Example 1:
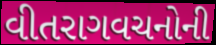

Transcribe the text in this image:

વીતરાગવચનોની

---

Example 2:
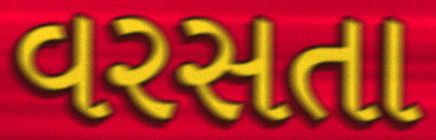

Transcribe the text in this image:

વરસતા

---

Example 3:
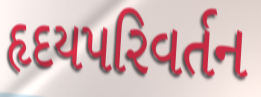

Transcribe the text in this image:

હૃદયપરિવર્તન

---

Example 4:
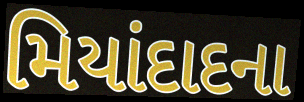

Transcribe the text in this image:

મિયાંદાદના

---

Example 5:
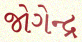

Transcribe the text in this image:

જોગેન્દ્ર